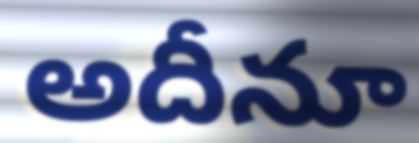
అదీనూ